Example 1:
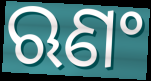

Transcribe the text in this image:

ଋଣଂ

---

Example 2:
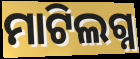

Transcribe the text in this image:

ମାଟିଲଗ୍ନ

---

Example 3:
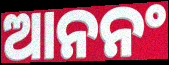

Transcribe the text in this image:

ଆନନଂ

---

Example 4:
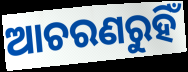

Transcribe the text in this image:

ଆଚରଣରୁହିଁ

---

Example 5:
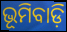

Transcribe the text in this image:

ଭୂମିବାଡ଼ି